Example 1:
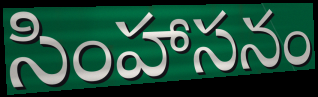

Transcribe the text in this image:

సింహాసనం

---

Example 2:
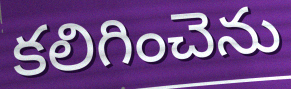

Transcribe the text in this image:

కలిగించెను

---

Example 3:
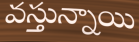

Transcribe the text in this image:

వస్తున్నాయి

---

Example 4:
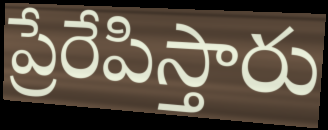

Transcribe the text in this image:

ప్రేరేపిస్తారు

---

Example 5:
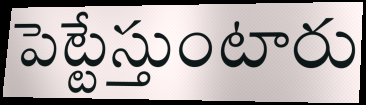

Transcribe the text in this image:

పెట్టేస్తుంటారు